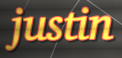
justin